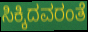
ಸಿಕ್ಕಿದವರಂತೆ